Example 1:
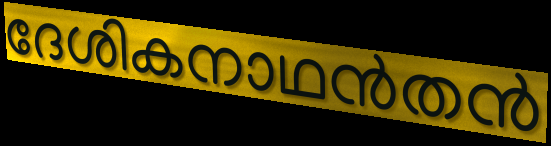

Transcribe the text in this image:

ദേശികനാഥൻതൻ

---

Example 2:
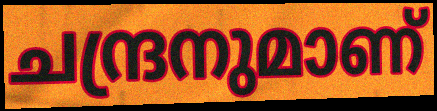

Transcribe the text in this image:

ചന്ദ്രനുമാണ്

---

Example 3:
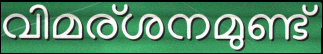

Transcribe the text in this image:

വിമര്ശനമുണ്ട്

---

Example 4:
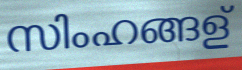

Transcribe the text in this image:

സിംഹങ്ങള്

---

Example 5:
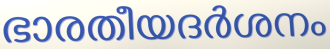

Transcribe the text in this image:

ഭാരതീയദർശനം